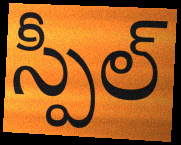
స్పీల్